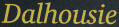
Dalhousie